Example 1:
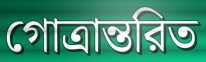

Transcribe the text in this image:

গোত্রান্তরিত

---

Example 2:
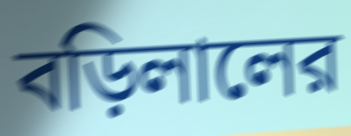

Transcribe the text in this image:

বড়িলালের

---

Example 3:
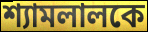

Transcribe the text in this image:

শ্যামলালকে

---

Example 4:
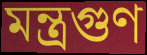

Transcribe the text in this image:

মন্ত্রগুণ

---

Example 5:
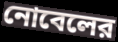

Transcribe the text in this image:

নোবেলের